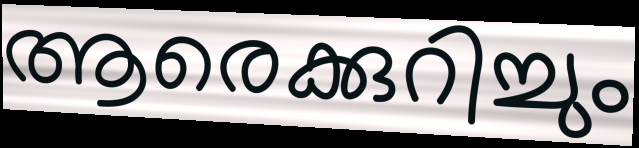
ആരെക്കുറിച്ചും